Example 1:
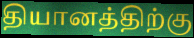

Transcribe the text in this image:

தியானத்திற்கு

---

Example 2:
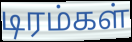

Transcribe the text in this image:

டிரம்கள்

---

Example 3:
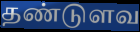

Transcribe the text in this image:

தண்டுளவ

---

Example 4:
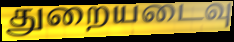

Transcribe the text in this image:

துறையடைவு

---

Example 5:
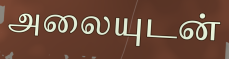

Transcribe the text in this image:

அலையுடன்